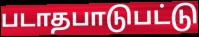
படாதபாடுபட்டு